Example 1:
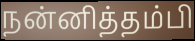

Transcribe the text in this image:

நன்னித்தம்பி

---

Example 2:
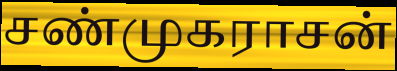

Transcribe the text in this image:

சண்முகராசன்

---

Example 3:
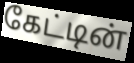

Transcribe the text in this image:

கேட்டின்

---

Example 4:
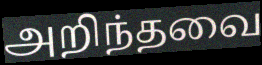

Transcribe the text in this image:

அறிந்தவை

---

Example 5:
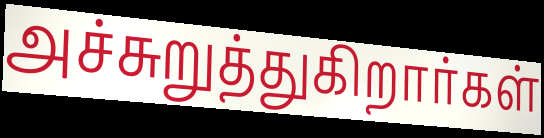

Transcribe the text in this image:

அச்சுறுத்துகிறார்கள்